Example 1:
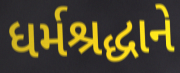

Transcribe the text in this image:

ધર્મશ્રદ્ધાને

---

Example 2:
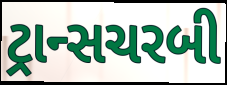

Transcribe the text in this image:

ટ્રાન્સચરબી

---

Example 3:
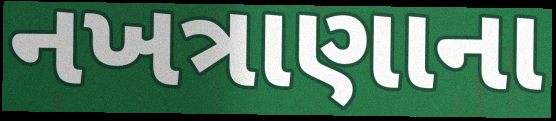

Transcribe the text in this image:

નખત્રાણાના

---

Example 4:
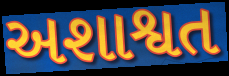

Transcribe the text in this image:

અશાશ્વત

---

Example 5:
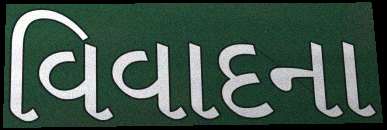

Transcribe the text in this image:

વિવાદના